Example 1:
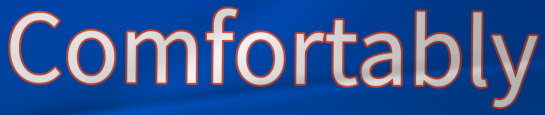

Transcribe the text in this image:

Comfortably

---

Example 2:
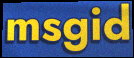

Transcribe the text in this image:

msgid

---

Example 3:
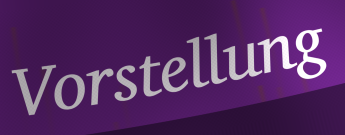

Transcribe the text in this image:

Vorstellung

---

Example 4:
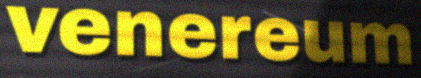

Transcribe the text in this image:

venereum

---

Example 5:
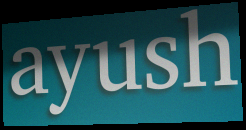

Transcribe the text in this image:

ayush